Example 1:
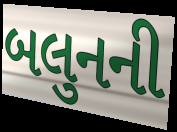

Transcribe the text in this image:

બલુનની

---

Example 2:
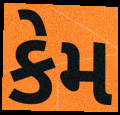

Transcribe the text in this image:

કેમ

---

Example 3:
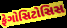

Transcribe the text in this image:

ફેગોસિટોસિસ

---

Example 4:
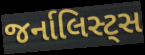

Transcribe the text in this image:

જર્નાલિસ્ટ્સ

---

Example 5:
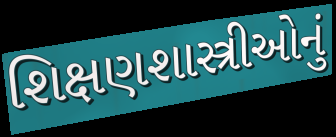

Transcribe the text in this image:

શિક્ષણશાસ્ત્રીઓનું